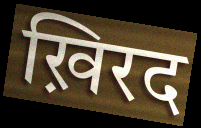
ख़िरद